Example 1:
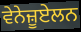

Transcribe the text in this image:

ਵੇਨੇਜ਼ੂਏਲਨ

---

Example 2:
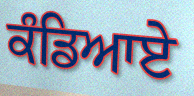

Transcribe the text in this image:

ਕੰਡਿਆਏ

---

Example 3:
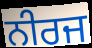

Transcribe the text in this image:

ਨੀਰਜ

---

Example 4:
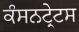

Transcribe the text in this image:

ਕੰਸਨਟ੍ਰੇਟਸ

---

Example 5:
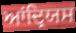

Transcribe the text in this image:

ਆਂਦ੍ਰਿਯਸ